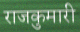
राजकुमारी